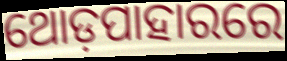
ଥୋଡ଼ପାହାରରେ